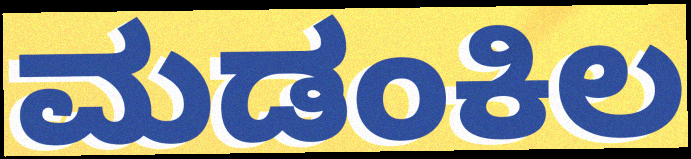
ಮಡಂಕಿಲ